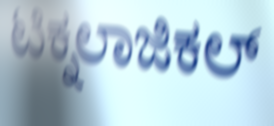
ಟೆಕ್ನಲಾಜಿಕಲ್